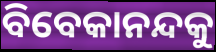
ବିବେକାନନ୍ଦକୁ